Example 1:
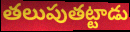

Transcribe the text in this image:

తలుపుతట్టాడు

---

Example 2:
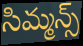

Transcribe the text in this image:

సిమ్మన్స్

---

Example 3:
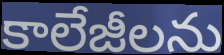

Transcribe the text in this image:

కాలేజీలను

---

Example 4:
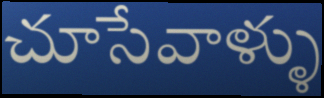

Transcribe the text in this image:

చూసేవాళ్ళు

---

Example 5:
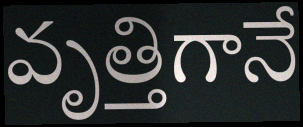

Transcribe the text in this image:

వృత్తిగానే